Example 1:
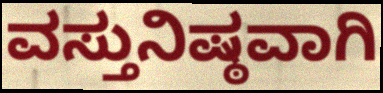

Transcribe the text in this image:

ವಸ್ತುನಿಷ್ಠವಾಗಿ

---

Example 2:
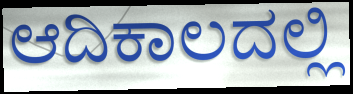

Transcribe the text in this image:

ಆದಿಕಾಲದಲ್ಲಿ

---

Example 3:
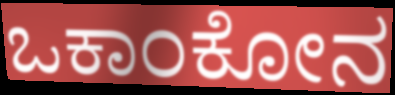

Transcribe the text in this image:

ಒಕಾಂಕೋನ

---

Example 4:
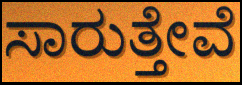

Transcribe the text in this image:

ಸಾರುತ್ತೇವೆ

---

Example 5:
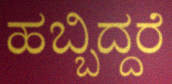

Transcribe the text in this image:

ಹಬ್ಬಿದ್ದರೆ